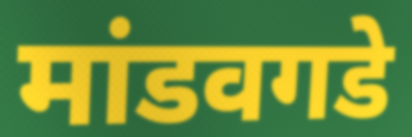
मांडवगडे